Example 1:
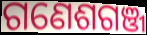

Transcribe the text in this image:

ଗଣେଶଗଞ୍ଜ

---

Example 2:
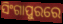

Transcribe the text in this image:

ସିଂଗାପୁରରେ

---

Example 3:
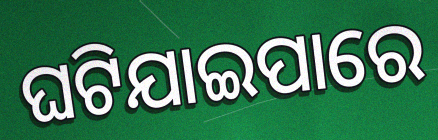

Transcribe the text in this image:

ଘଟିଯାଇପାରେ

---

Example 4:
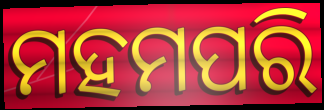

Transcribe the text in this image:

ମହମପରି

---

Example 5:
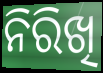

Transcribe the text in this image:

ନିରିଖି